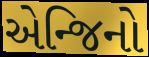
એન્જિનો